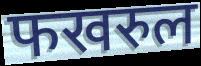
फखरुल